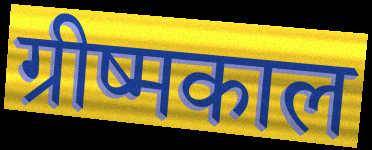
ग्रीष्मकाल